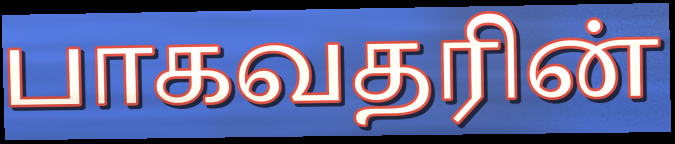
பாகவதரின்